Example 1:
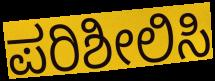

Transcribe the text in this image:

ಪರಿಶೀಲಿಸಿ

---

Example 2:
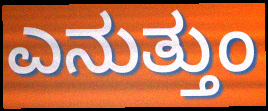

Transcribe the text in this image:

ಎನುತ್ತುಂ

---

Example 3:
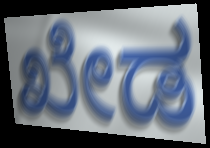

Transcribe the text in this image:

ಖೇಡ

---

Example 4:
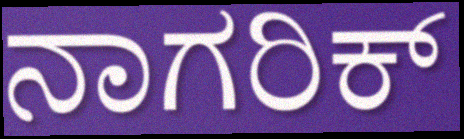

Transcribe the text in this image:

ನಾಗರಿಕ್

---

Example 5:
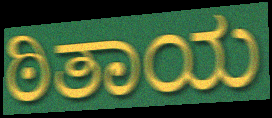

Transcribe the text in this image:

ಠಿತಾಯ